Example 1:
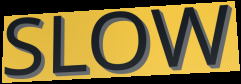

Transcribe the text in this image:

SLOW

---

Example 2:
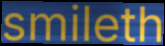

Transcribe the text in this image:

smileth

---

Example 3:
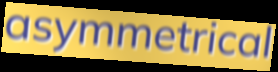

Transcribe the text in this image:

asymmetrical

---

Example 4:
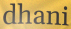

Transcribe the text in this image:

dhani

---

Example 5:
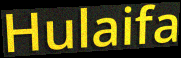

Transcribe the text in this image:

Hulaifa